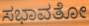
ಸಭಾವತೋ